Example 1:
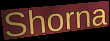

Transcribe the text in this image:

Shorna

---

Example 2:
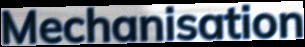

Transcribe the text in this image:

Mechanisation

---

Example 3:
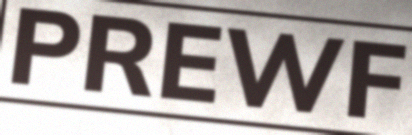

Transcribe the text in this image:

PREWF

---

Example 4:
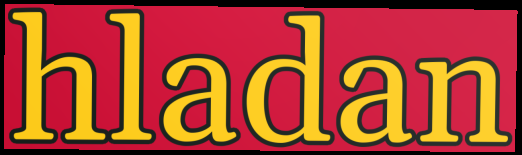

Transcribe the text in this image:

hladan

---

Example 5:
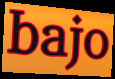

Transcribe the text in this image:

bajo